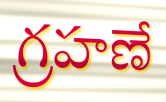
గ్రహణే